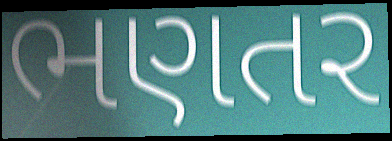
ભણતર